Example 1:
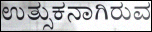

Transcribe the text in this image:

ಉತ್ಸುಕನಾಗಿರುವ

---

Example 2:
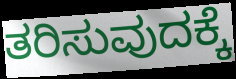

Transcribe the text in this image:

ತರಿಸುವುದಕ್ಕೆ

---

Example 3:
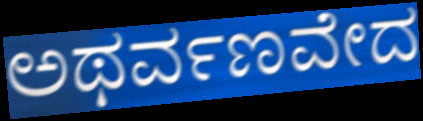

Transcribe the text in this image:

ಅಥರ್ವಣವೇದ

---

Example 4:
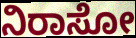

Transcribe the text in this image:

ನಿರಾಸೋ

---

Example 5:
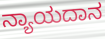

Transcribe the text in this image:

ನ್ಯಾಯದಾನ